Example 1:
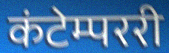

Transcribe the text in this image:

कंटेम्पररी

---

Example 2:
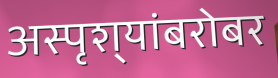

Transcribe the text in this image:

अस्पृश्यांबरोबर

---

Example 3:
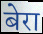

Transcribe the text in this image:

बेरा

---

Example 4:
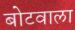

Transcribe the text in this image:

बोटवाला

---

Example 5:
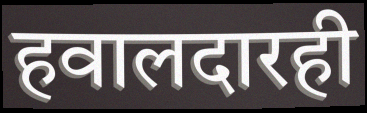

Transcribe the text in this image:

हवालदारही